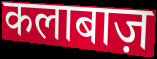
कलाबाज़